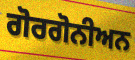
ਗੋਰਗੋਨੀਅਨ